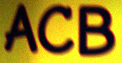
ACB